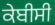
ਕੇਬੀਸੀ